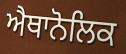
ਐਥਾਨੋਲਿਕ